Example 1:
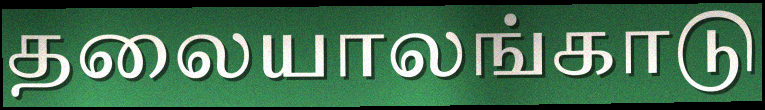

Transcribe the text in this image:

தலையாலங்காடு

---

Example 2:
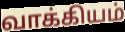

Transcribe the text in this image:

வாக்கியம்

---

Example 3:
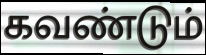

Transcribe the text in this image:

கவண்டும்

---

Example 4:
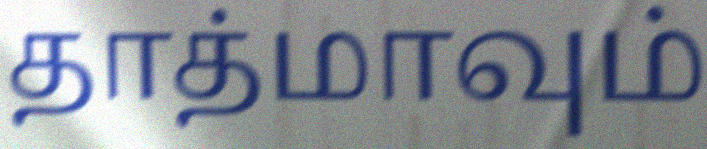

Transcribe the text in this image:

தாத்மாவும்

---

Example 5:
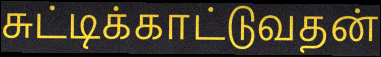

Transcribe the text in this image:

சுட்டிக்காட்டுவதன்